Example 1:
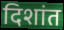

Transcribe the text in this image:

दिशांत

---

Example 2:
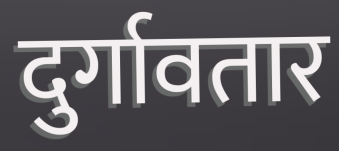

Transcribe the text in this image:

दुर्गावतार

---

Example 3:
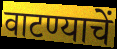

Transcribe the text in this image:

वाटण्याचें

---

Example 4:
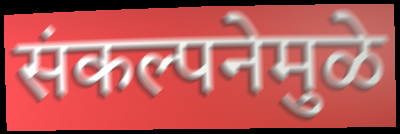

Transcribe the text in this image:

संकल्पनेमुळे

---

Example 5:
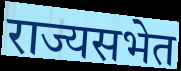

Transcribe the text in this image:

राज्यसभेत